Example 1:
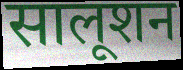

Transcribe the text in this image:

सालूशन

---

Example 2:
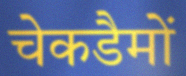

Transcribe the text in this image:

चेकडैमों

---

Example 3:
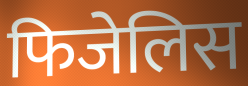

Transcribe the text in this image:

फिजेलिस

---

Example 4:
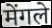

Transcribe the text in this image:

मेंगले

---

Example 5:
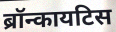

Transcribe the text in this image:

ब्रॉन्कायटिस